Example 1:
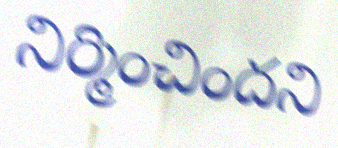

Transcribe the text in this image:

నిర్మించిందని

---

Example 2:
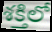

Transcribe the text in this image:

శక్తిలో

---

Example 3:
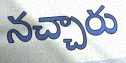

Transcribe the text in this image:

నచ్చారు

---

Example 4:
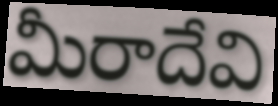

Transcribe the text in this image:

మీరాదేవి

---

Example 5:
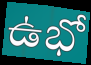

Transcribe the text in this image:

ఉభో